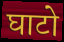
घाटो